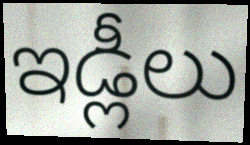
ఇడ్లీలు